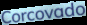
Corcovado